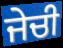
ਜੇਚੀ